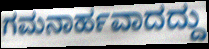
ಗಮನಾರ್ಹವಾದದ್ದು